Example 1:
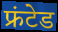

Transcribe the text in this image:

फ्रंटेड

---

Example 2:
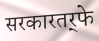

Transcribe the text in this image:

सरकारतर्फे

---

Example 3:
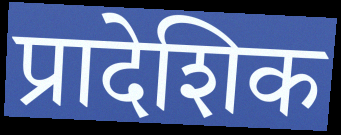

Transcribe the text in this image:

प्रादेशिक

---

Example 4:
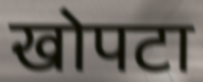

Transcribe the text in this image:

खोपटा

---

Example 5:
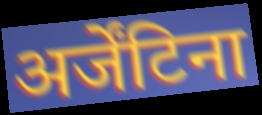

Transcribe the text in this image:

अर्जेंटिना